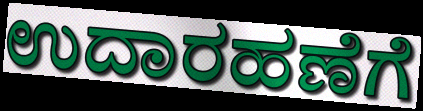
ಉದಾರಹಣೆಗೆ